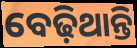
ବେଢ଼ିଥାନ୍ତି